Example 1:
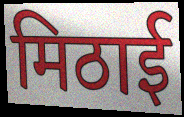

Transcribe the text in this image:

मिठाई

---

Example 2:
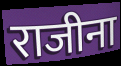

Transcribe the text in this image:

राजीना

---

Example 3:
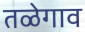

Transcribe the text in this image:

तळेगाव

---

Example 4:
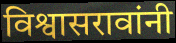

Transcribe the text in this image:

विश्वासरावांनी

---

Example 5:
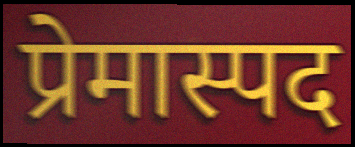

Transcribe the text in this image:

प्रेमास्पद